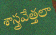
శాస్త్రవేత్తలా